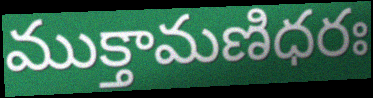
ముక్తామణిధరః